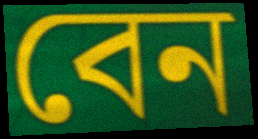
বেন